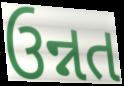
ઉન્નત